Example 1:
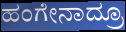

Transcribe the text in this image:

ಹಂಗೇನಾದ್ರೂ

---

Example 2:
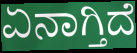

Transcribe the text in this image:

ಏನಾಗ್ತಿದೆ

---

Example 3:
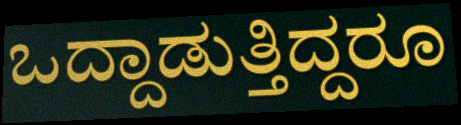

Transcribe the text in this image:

ಒದ್ದಾಡುತ್ತಿದ್ದರೂ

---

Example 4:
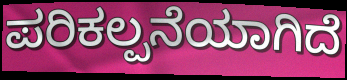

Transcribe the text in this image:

ಪರಿಕಲ್ಪನೆಯಾಗಿದೆ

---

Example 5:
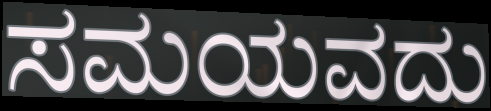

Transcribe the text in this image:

ಸಮಯವದು